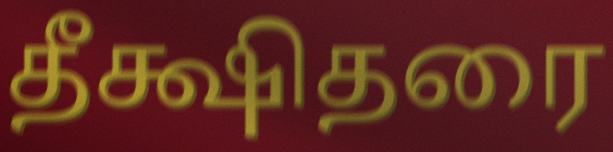
தீக்ஷிதரை